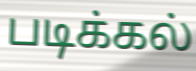
படிக்கல்